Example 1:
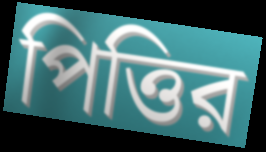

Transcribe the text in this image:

পিত্তির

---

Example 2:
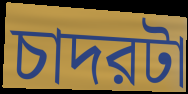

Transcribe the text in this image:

চাদরটা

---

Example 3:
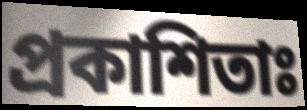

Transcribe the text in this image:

প্রকাশিতাঃ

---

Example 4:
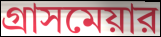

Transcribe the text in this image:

গ্রাসমেয়ার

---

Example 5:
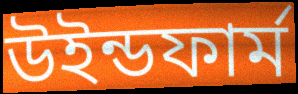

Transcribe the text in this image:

উইন্ডফার্ম